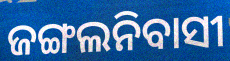
ଜଙ୍ଗଲନିବାସୀ